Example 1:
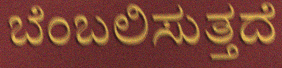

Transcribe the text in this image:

ಬೆಂಬಲಿಸುತ್ತದೆ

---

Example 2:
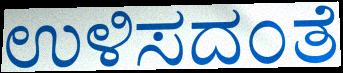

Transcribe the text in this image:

ಉಳಿಸದಂತೆ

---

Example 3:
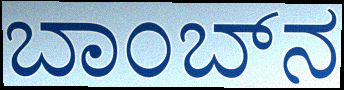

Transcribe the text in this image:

ಬಾಂಬ್‍ನ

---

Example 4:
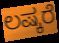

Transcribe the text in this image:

ಲಷ್ಕರೆ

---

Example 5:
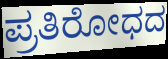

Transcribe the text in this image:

ಪ್ರತಿರೋಧದ